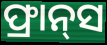
ଫ୍ରାନ୍‌ସ